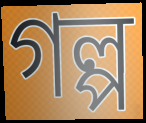
গল্প